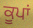
ਕੂਪਾਂ